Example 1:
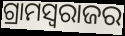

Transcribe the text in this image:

ଗ୍ରାମସ୍ୱରାଜର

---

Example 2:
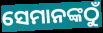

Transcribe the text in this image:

ସେମାନଙ୍କଠୁଁ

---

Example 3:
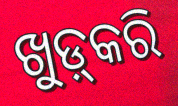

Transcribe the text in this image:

ଖୁଡ଼୍‍କରି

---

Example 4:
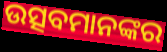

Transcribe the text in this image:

ଉତ୍ସବମାନଙ୍କର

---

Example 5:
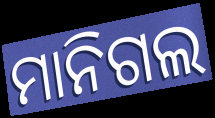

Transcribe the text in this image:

ମାନିଗଲ